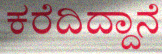
ಕರೆದಿದ್ದಾನೆ